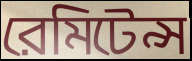
রেমিটেন্স